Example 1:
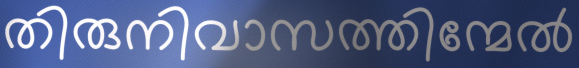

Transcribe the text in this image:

തിരുനിവാസത്തിന്മേൽ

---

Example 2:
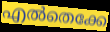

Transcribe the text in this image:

എൽതെക്കേ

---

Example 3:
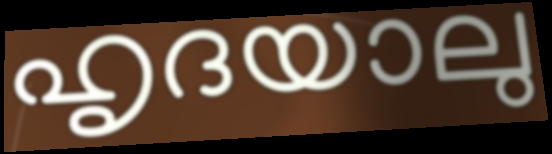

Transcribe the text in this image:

ഹൃദയാലു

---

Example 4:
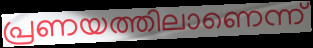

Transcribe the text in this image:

പ്രണയത്തിലാണെന്ന്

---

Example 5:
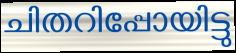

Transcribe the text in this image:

ചിതറിപ്പോയിട്ടു